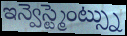
ఇన్వెస్ట్మెంట్స్ను